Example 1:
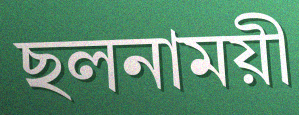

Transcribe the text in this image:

ছলনাময়ী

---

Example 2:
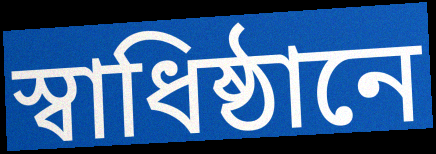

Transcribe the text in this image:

স্বাধিষ্ঠানে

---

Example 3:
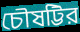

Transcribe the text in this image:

চৌষট্টির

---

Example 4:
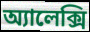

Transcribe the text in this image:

অ্যালেক্সি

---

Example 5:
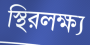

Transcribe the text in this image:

স্থিরলক্ষ্য